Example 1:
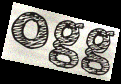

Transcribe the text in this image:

ogg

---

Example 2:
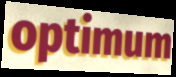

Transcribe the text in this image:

optimum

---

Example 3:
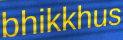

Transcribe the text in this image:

bhikkhus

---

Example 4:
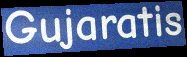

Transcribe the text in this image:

Gujaratis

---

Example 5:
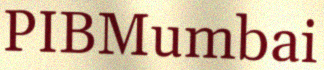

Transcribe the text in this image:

PIBMumbai